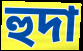
হুদা